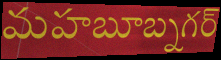
మహబూబ్నగర్